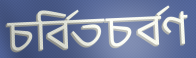
চর্বিতচর্বণ